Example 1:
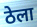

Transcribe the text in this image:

ठेला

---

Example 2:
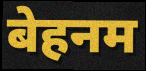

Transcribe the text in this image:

बेहनम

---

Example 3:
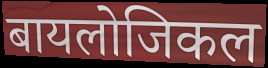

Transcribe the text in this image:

बायलोजिकल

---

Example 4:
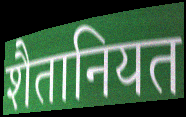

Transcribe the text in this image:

शैतानियत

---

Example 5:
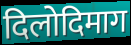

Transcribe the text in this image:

दिलोदिमाग